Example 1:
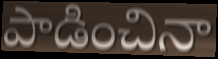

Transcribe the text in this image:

పాడించినా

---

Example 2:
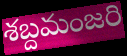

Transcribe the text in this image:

శబ్దమంజరి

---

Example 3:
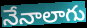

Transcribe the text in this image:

నేనాలాగు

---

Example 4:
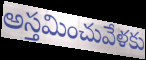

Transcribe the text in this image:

అస్తమించువేళకు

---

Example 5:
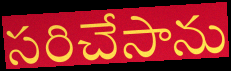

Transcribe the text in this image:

సరిచేసాను